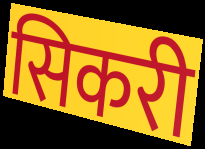
सिकरी